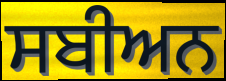
ਸਬੀਅਨ